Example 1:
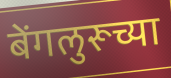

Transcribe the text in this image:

बेंगलुरूच्या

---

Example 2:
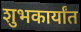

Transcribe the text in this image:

शुभकार्यांत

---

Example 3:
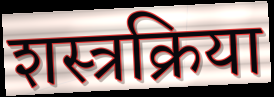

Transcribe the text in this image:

शस्त्रक्रिया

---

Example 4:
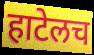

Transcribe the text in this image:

हाटेलच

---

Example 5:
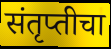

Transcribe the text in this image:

संतृप्तीचा